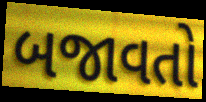
બજાવતો